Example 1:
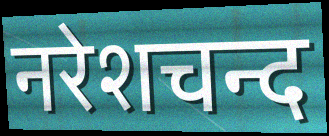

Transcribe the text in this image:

नरेशचन्द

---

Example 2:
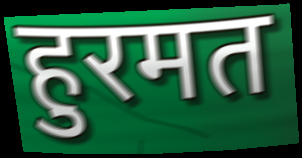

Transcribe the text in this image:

हुरमत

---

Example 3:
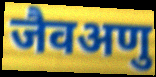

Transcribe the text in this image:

जैवअणु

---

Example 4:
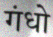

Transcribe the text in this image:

गंधो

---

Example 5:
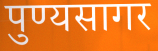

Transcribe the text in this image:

पुण्यसागर